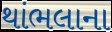
થાંભલાના